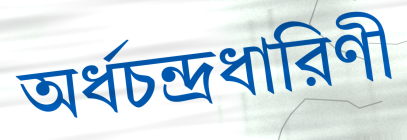
অর্ধচন্দ্রধারিণী